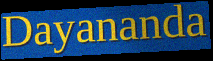
Dayananda